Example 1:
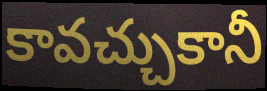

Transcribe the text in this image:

కావచ్చుకానీ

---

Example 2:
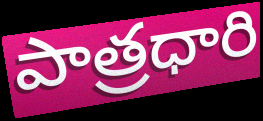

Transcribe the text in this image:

పాత్రధారి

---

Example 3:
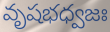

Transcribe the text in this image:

వృషభధ్వజః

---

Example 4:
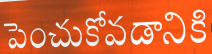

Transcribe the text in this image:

పెంచుకోవడానికి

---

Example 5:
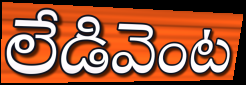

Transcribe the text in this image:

లేడివెంట